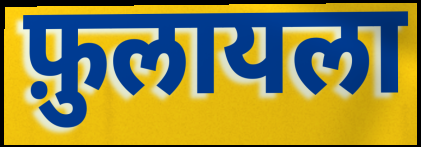
फ़ुलायला